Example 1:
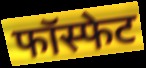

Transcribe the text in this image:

फॉस्फेट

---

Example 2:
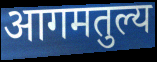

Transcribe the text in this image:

आगमतुल्य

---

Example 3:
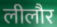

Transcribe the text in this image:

लीलौर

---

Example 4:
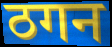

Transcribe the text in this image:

ठगन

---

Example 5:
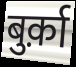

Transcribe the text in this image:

बुर्क़ा